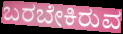
ಬರಬೇಕಿರುವ